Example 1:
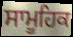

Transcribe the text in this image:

ਸਾਮੂਹਿਕ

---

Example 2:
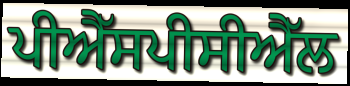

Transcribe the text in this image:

ਪੀਐੱਸਪੀਸੀਐੱਲ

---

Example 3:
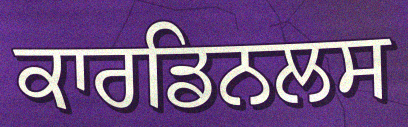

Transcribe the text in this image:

ਕਾਰਡਿਨਲਸ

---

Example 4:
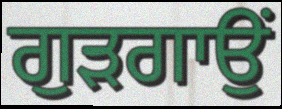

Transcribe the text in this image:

ਗੁੜਗਾਉਂ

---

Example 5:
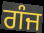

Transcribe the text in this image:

ਗੰਜ